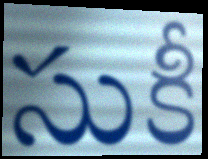
సుకీ